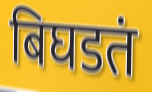
बिघडतं